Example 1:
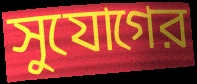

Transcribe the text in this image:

সুযোগের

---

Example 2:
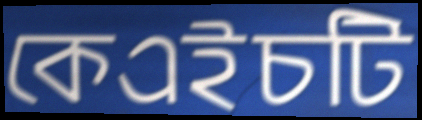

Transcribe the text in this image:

কেএইচটি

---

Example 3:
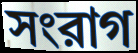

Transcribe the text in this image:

সংরাগ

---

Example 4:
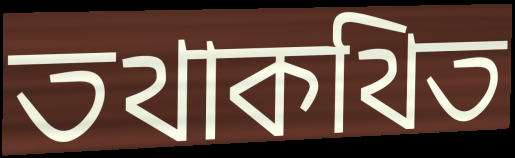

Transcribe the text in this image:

তথাকথিত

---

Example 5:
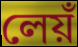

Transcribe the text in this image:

লেয়ঁ